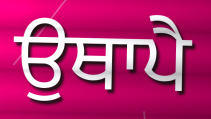
ਉਥਾਪੈ